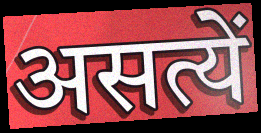
असत्यें